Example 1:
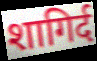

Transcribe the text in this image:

शागिर्द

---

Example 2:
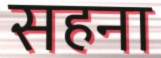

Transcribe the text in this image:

सहना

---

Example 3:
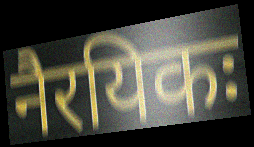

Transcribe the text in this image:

नैरयिकः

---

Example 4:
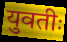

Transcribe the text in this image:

युवतीः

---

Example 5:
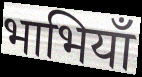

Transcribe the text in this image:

भाभियाँ